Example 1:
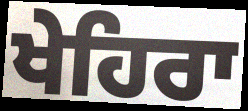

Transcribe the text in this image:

ਖੇਹਿਰਾ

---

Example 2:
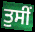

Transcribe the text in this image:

ਤੁਸੀਂ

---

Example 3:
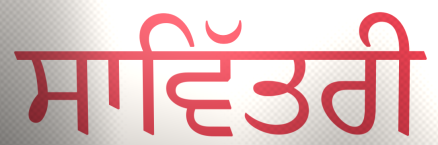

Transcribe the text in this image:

ਸਾਵਿੱਤਰੀ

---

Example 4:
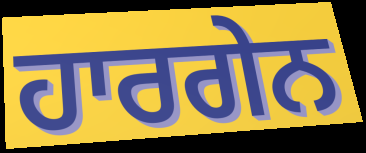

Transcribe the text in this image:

ਹਾਰਗੇਨ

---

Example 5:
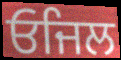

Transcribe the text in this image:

ਓਜਿਲ